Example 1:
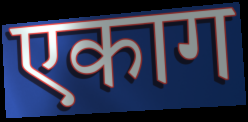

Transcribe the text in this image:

एकाग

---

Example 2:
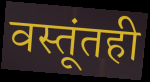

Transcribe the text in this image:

वस्तूंतही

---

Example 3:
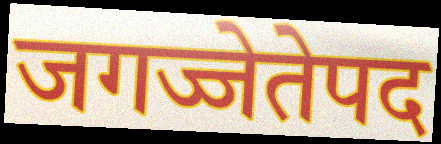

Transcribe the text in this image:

जगज्जेतेपद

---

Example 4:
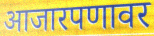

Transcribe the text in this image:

आजारपणावर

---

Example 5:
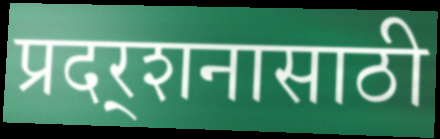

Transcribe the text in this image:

प्रदर्शनासाठी